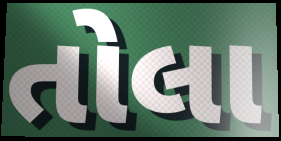
તોલા